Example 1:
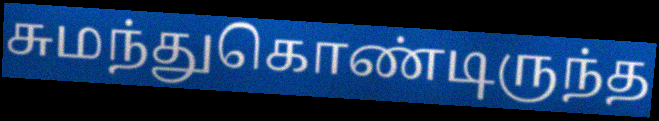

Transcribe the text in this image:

சுமந்துகொண்டிருந்த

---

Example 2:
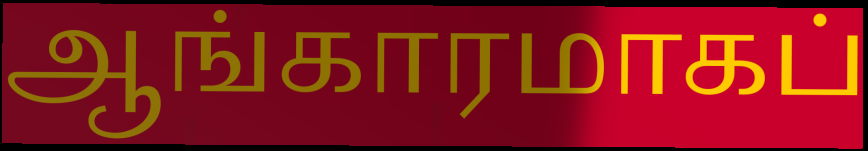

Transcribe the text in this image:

ஆங்காரமாகப்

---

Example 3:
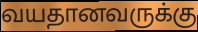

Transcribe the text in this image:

வயதானவருக்கு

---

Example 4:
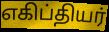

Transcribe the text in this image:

எகிப்தியர்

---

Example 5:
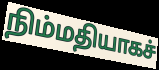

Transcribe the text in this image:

நிம்மதியாகச்